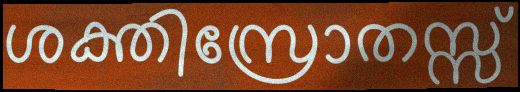
ശക്തിസ്രോതസ്സ്